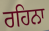
ਰਹਿਨਾ